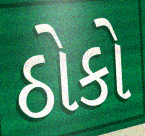
ઠોકો